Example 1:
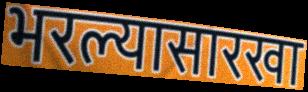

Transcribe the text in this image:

भरल्यासारखा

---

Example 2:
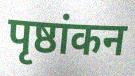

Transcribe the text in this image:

पृष्ठांकन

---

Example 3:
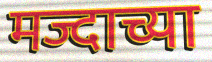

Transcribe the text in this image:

मज्दाच्या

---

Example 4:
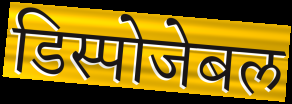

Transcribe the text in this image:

डिस्पोजेबल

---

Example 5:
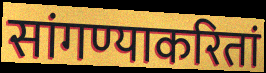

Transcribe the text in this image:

सांगण्याकरितां